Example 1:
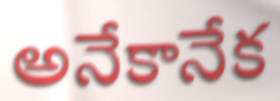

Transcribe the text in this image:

అనేకానేక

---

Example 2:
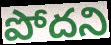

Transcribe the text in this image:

పోదని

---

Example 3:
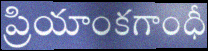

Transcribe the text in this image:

ప్రియాంకగాంధీ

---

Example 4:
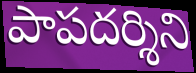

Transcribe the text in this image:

పాపదర్శిని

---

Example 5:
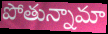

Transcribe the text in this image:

పోతున్నామా